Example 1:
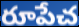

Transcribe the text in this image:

రూపేచ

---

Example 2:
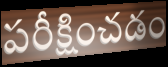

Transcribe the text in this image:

పరీక్షించడం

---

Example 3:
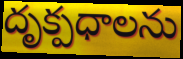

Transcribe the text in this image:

దృక్పధాలను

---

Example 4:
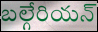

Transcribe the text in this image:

బల్గేరియన్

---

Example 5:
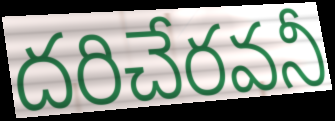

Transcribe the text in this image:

దరిచేరవనీ